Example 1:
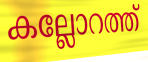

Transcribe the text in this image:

കല്ലോറത്ത്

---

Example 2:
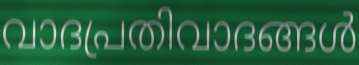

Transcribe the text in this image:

വാദപ്രതിവാദങ്ങൾ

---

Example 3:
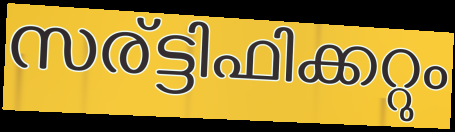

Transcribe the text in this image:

സര്ട്ടിഫിക്കറ്റും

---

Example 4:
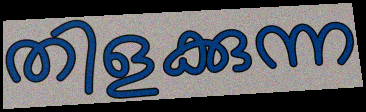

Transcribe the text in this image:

തിളക്കുന്ന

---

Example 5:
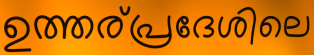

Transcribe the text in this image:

ഉത്തര്പ്രദേശിലെ